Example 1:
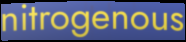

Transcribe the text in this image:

nitrogenous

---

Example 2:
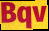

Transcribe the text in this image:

Bqv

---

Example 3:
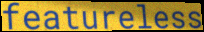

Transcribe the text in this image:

featureless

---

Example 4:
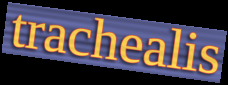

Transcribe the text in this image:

trachealis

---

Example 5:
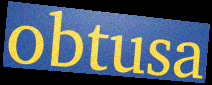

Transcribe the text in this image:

obtusa